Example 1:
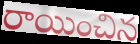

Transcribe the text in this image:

రాయించిన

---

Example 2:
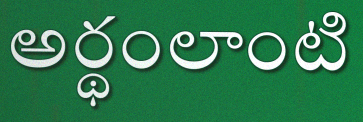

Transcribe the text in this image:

అర్థంలాంటి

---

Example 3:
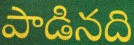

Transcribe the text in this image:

పాడినది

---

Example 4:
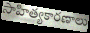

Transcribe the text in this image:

సాహిత్యకారణాలు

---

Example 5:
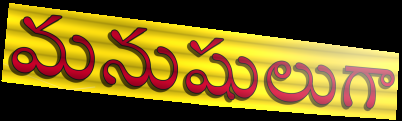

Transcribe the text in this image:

మనుషులుగా